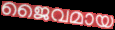
ജൈവമായ